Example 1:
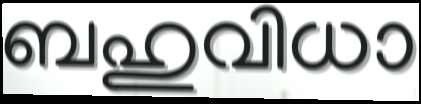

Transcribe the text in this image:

ബഹുവിധാ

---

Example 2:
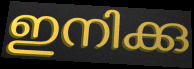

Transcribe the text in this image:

ഇനിക്കു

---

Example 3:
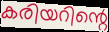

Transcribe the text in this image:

കരിയറിന്റെ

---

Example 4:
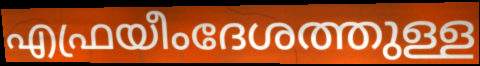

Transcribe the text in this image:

എഫ്രയീംദേശത്തുള്ള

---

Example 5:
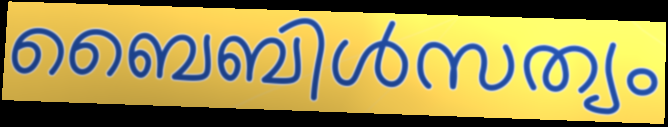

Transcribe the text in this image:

ബൈബിൾസത്യം